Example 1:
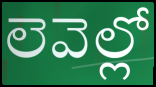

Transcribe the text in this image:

లెవెల్లో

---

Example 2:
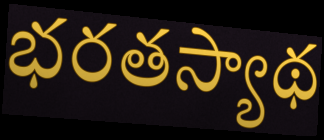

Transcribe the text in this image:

భరతస్యాథ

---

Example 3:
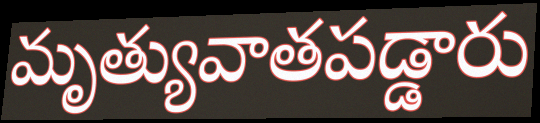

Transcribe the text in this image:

మృత్యువాతపడ్డారు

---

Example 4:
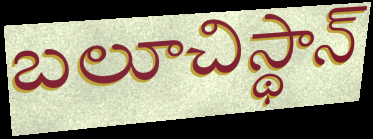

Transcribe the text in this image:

బలూచిస్థాన్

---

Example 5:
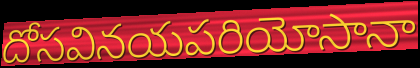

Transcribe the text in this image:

దోసవినయపరియోసానా